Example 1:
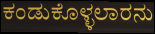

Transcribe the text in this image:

ಕಂಡುಕೊಳ್ಳಲಾರನು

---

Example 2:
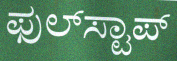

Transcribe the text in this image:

ಫುಲ್‍ಸ್ಟಾಪ್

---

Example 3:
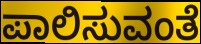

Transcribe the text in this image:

ಪಾಲಿಸುವಂತೆ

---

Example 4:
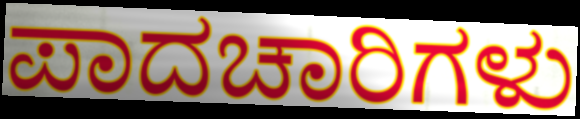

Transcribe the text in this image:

ಪಾದಚಾರಿಗಳು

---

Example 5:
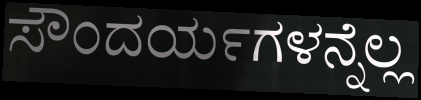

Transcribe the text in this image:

ಸೌಂದರ್ಯಗಳನ್ನೆಲ್ಲ